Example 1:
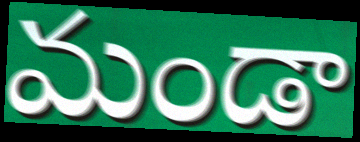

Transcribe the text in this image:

మండా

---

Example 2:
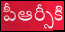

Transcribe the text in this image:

పీఆర్సీకి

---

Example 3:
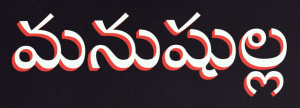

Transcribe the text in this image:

మనుషుల్ల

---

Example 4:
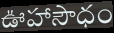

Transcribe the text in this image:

ఊహాసౌధం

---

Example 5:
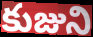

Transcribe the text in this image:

కుజుని